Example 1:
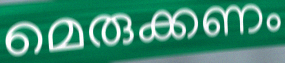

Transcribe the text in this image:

മെരുക്കണം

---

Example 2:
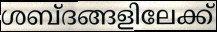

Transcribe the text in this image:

ശബ്ദങ്ങളിലേക്ക്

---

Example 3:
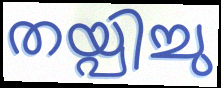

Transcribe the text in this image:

തയ്പിച്ചു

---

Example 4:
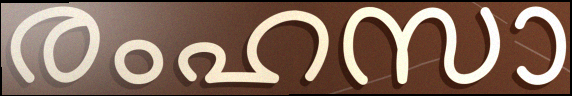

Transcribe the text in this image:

രംഹസാ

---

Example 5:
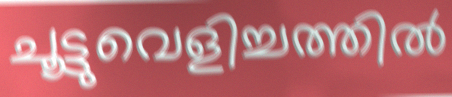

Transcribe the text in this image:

ചൂട്ടുവെളിച്ചത്തിൽ